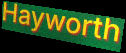
Hayworth